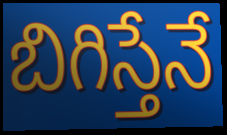
బిగిస్తేనే